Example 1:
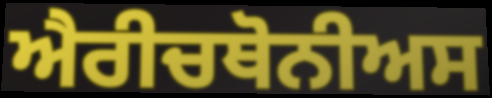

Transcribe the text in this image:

ਐਰੀਚਥੋਨੀਅਸ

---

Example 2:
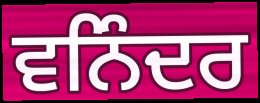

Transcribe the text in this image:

ਵਨਿੰਦਰ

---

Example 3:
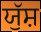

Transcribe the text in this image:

ਯੁੱਸ਼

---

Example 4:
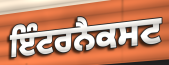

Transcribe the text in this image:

ਇੰਟਰਨੈਕਸਟ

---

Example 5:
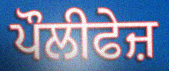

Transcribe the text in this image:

ਪੌਲੀਫੇਜ਼